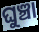
ଘୁଞ୍ଚା